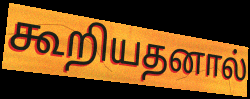
கூறியதனால்